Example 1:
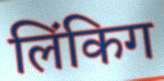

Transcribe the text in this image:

लिंकिग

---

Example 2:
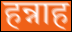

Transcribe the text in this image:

हन्नाह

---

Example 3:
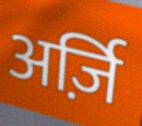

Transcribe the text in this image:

अर्ज़ि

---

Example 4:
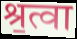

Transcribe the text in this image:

श्र॒त्वा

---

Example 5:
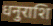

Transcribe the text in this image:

धनुराशि